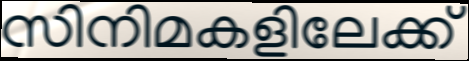
സിനിമകളിലേക്ക്